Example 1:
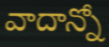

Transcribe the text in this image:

వాదాన్నో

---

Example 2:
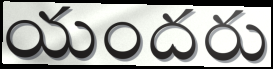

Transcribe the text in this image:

యందరు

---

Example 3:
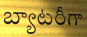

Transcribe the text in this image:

బ్యాటరీగా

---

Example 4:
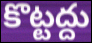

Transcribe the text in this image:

కొట్టద్దు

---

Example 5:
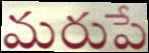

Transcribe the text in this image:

మరుపే